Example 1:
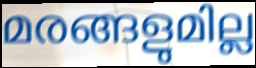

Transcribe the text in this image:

മരങ്ങളുമില്ല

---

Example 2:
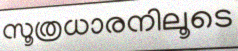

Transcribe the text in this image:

സൂത്രധാരനിലൂടെ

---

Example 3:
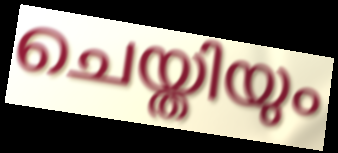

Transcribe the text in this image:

ചെയ്തിയും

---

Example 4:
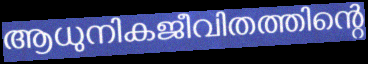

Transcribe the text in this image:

ആധുനികജീവിതത്തിന്റെ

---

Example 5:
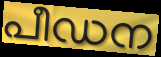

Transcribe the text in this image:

പീഡന